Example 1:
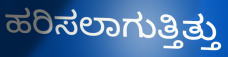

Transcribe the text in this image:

ಹರಿಸಲಾಗುತ್ತಿತ್ತು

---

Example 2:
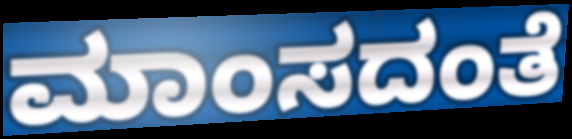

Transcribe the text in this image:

ಮಾಂಸದಂತೆ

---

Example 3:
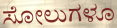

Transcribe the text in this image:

ಸೋಲುಗಳೂ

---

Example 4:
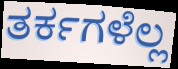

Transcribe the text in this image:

ತರ್ಕಗಳೆಲ್ಲ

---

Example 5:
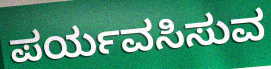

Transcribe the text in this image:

ಪರ್ಯವಸಿಸುವ